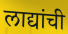
लाद्यांची